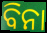
ବିନା